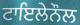
ਟਾਇਲੇਨੌਲ